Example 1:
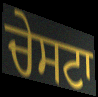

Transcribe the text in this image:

ਚੇਸਟਾ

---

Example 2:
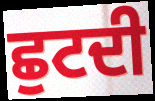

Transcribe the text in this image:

ਛੁਟਦੀ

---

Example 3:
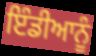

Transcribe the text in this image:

ਇੰਡੀਆਨੂੰ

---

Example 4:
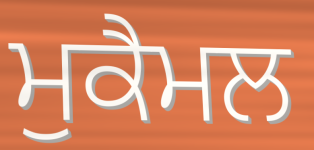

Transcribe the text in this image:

ਮੁਕੈਮਲ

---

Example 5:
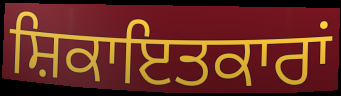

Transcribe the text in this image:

ਸ਼ਿਕਾਇਤਕਾਰਾਂ